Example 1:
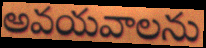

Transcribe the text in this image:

అవయవాలను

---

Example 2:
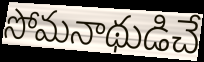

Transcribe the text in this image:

సోమనాథుడిచే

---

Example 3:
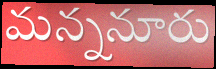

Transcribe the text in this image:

మన్ననూరు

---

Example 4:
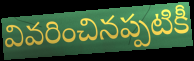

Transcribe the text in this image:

వివరించినప్పటికీ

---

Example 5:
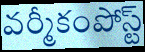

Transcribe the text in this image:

వర్మీకంపోస్ట్